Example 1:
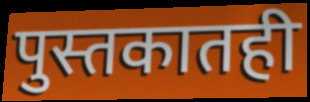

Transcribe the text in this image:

पुस्तकातही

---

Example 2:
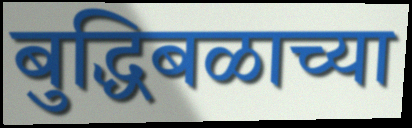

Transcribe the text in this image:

बुद्धिबळाच्या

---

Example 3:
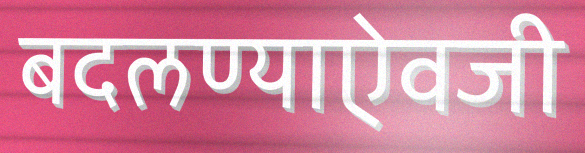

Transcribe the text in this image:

बदलण्याऐवजी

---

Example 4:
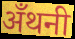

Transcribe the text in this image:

अँथनी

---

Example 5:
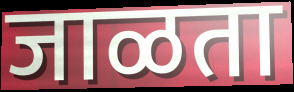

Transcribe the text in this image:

जाळता